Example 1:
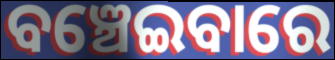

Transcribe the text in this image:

ବଞ୍ଚେଇବାରେ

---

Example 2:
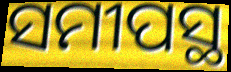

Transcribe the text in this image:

ସମୀପସ୍ଥ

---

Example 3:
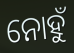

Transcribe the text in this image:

ନୋହୁଁ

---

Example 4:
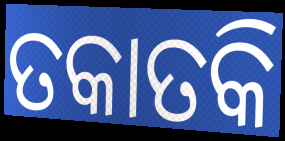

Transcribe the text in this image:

ତକାତକି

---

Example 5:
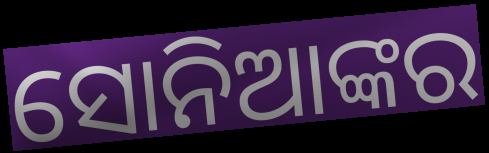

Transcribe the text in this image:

ସୋନିଆଙ୍କର